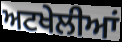
ਅਟਖੇਲੀਆਂ